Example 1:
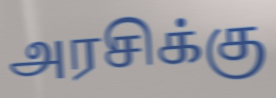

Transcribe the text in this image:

அரசிக்கு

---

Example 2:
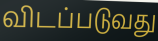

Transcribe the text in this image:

விடப்படுவது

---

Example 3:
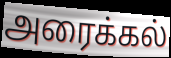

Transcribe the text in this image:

அரைக்கல்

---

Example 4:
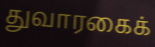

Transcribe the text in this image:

துவாரகைக்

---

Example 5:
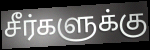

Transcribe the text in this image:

சீர்களுக்கு